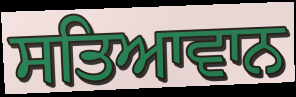
ਸਤਿਆਵਾਨ